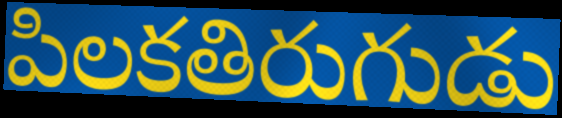
పిలకతిరుగుడు